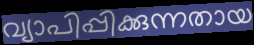
വ്യാപിപ്പിക്കുന്നതായ